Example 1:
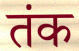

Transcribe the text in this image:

तंक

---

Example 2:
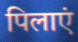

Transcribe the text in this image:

पिलाएं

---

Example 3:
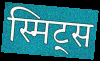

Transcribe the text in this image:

स्मिट्स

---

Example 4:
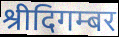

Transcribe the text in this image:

श्रीदिगम्बर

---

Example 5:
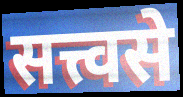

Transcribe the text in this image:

सत्त्वसे